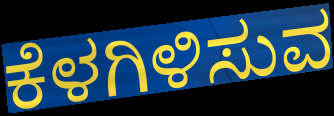
ಕೆಳಗಿಳಿಸುವ